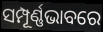
ସମ୍ପୂର୍ଣ୍ଣଭାବରେ